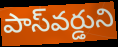
పాస్‌వర్డుని